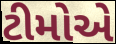
ટીમોએ